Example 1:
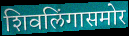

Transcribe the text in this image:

शिवलिंगासमोर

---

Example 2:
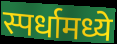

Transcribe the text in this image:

स्पर्धामध्ये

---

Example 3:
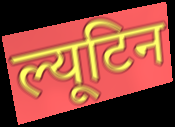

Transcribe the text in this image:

ल्यूटिन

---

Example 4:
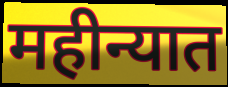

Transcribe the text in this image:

महीन्यात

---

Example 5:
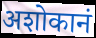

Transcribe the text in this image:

अशोकानं